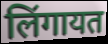
लिंगायत